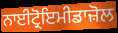
ਨਾਈਟ੍ਰੋਇਮੀਡਾਜ਼ੋਲ